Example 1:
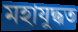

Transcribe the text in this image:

মহাযুদ্ধত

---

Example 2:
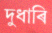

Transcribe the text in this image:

দুধাৰি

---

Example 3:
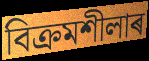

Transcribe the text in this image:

বিক্ৰমশীলাৰ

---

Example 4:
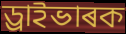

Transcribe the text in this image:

ড্ৰাইভাৰক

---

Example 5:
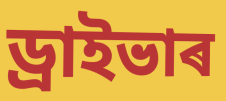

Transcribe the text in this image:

ড্ৰাইভাৰ